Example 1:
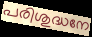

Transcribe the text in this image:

പരിശുദ്ധനേ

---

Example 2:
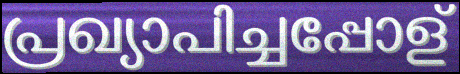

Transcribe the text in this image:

പ്രഖ്യാപിച്ചപ്പോള്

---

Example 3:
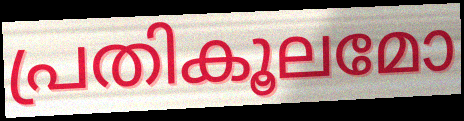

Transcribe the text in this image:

പ്രതികൂലമോ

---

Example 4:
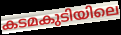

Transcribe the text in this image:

കടമകുടിയിലെ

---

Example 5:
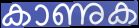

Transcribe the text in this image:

കാണുക